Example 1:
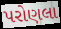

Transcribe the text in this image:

પરોણલા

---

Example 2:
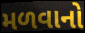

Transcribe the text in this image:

મળવાનો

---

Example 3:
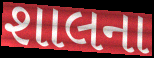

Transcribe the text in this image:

શાલના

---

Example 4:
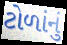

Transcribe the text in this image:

ટોળાંનું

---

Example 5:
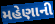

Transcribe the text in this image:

મહેણાની